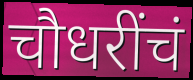
चौधरींचं